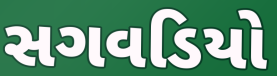
સગવડિયો